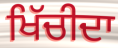
ਖਿੱਚੀਦਾ